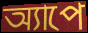
অ্যাপে